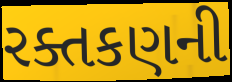
રક્તકણની